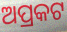
ଅପ୍ରକଟ